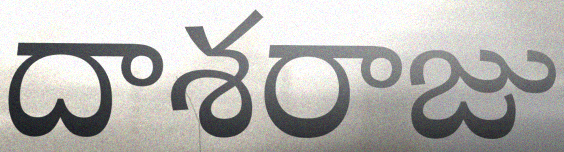
దాశరాజు